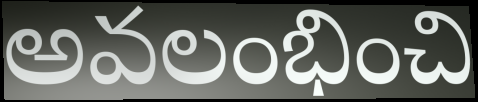
అవలంభించి